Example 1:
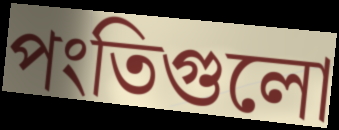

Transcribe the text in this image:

পংতিগুলো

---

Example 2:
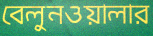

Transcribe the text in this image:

বেলুনওয়ালার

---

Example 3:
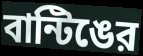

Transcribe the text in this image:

বান্টিঙের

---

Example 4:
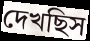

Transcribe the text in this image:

দেখছিস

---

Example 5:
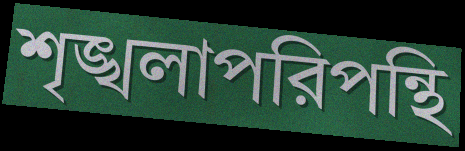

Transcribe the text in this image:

শৃঙ্খলাপরিপন্থি